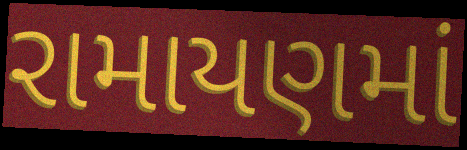
રામાયણમાં